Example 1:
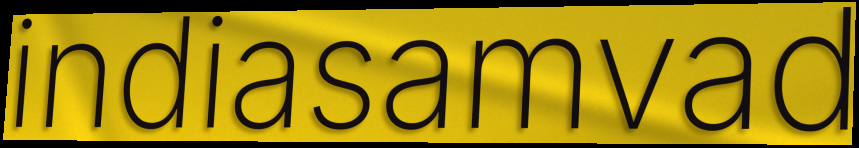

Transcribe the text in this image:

indiasamvad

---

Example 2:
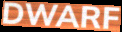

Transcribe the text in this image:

DWARF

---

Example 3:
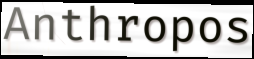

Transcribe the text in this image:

Anthropos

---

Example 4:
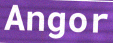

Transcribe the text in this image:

Angor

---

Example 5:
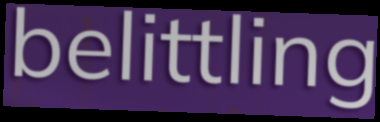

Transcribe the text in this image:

belittling